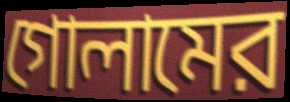
গোলামের